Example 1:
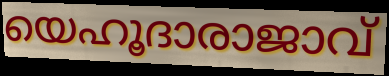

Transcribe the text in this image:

യെഹൂദാരാജാവ്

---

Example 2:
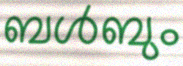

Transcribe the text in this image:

ബൾബും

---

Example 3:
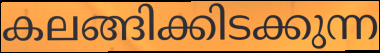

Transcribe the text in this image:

കലങ്ങിക്കിടക്കുന്ന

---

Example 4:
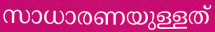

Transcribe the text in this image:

സാധാരണയുള്ളത്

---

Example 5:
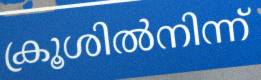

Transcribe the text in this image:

ക്രൂശിൽനിന്ന്